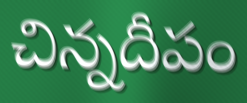
చిన్నదీపం